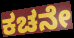
ಕಚನೇ